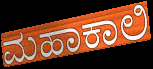
ಮಹಾಕಾಲಿ